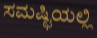
ಸಮಷ್ಟಿಯಲ್ಲಿ